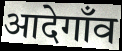
आदेगाँव